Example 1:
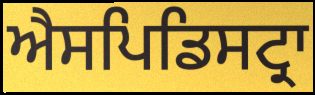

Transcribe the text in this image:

ਐਸਪਿਡਿਸਟ੍ਰਾ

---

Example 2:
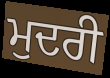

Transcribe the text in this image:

ਮੁਦਰੀ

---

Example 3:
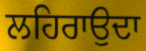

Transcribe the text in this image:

ਲਹਿਰਾਉਦਾ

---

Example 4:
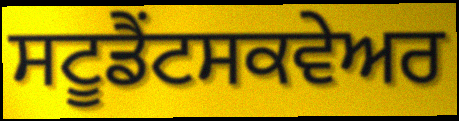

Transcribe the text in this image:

ਸਟੂਡੈਂਟਸਕਵੇਅਰ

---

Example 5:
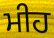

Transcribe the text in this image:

ਮੀਹ